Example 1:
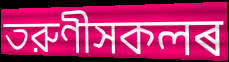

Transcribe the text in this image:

তৰুণীসকলৰ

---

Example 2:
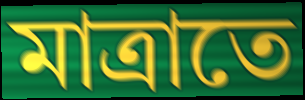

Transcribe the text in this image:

মাত্ৰাতে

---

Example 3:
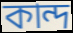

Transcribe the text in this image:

কান্দ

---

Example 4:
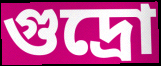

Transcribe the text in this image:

গুদ্ৰো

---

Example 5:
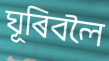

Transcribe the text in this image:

ঘূৰিবলৈ